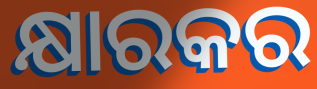
କ୍ଷାରକର